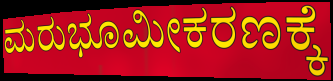
ಮರುಭೂಮೀಕರಣಕ್ಕೆ